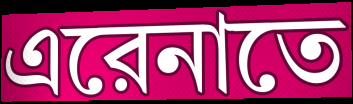
এরেনাতে